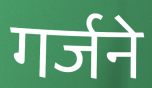
गर्जने